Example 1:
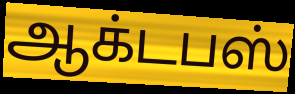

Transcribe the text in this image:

ஆக்டபஸ்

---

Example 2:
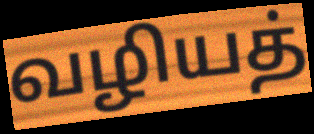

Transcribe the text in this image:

வழியத்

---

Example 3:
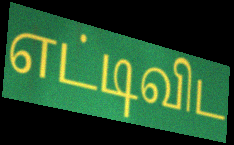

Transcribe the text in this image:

எட்டிவிட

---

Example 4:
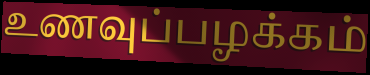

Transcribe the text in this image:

உணவுப்பழக்கம்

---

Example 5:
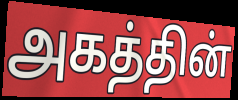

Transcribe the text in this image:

அகத்தின்